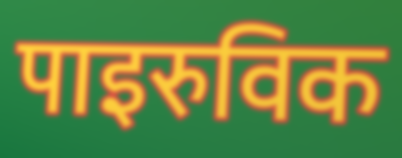
पाइरुविक